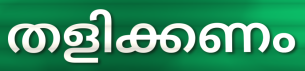
തളിക്കണം